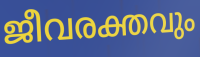
ജീവരക്തവും